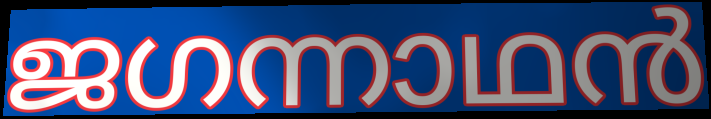
ജഗന്നാഥൻ